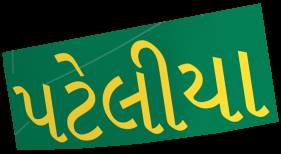
પટેલીયા